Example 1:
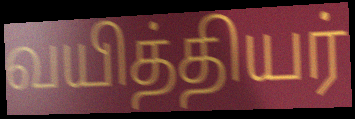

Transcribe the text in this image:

வயித்தியர்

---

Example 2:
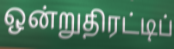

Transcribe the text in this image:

ஒன்றுதிரட்டிப்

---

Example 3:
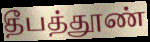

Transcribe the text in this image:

தீபத்தூண்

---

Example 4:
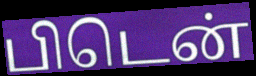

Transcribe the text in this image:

பிடென்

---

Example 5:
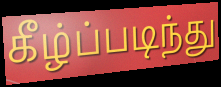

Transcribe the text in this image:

கீழ்ப்படிந்து